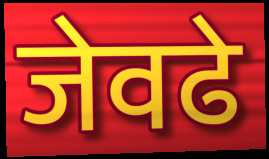
जेवढे